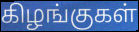
கிழங்குகள்